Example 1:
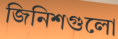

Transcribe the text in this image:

জিনিশগুলো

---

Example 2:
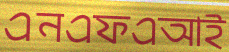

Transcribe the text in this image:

এনএফএআই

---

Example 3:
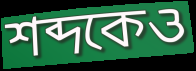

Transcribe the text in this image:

শব্দকেও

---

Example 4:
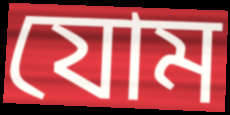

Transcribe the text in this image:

যোম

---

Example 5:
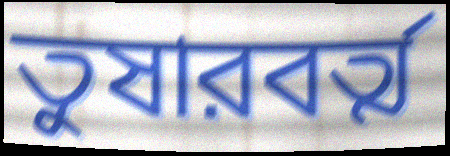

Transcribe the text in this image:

তুষারবর্ত্ম